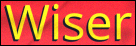
Wiser